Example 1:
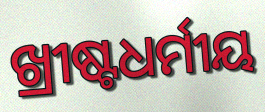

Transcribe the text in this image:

ଖ୍ରୀଷ୍ଟଧର୍ମୀୟ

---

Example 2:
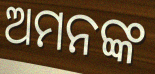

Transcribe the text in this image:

ଅମନଙ୍କ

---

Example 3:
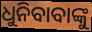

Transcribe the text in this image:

ଧୁନିବାବାଙ୍କୁ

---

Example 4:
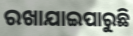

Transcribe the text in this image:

ରଖାଯାଇପାରୁଛି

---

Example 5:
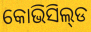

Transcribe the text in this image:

କୋଭିସିଲ୍‌ଡ